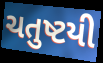
ચતુષ્ટયી